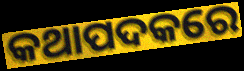
କଥାପଦକରେ